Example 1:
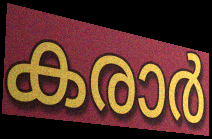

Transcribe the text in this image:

കരാർ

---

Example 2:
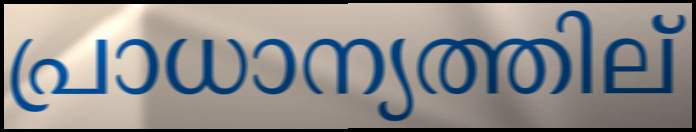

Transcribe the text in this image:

പ്രാധാന്യത്തില്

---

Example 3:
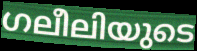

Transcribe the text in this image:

ഗലീലിയുടെ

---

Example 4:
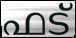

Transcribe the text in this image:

ഫട്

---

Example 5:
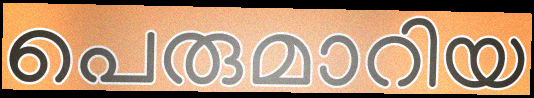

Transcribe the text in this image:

പെരുമാറിയ